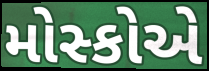
મોસ્કોએ